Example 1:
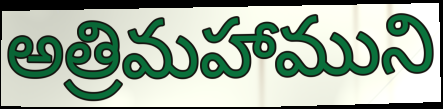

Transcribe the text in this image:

అత్రిమహాముని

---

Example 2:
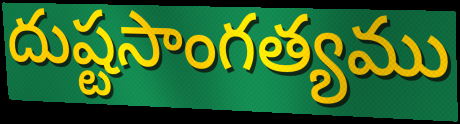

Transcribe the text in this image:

దుష్టసాంగత్యము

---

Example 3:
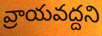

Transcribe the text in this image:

వ్రాయవద్దని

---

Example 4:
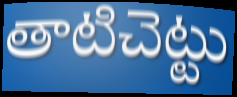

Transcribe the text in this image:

తాటిచెట్టు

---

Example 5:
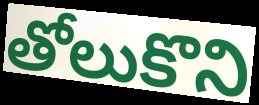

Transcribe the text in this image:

తోలుకొని